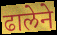
ढालेने